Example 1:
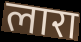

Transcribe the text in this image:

लारा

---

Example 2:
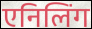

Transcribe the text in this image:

एनिलिंग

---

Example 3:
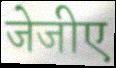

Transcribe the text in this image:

जेजीए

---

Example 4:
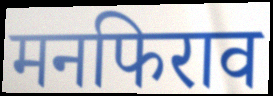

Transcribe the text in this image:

मनफिराव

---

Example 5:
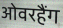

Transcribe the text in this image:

ओवरहैंग